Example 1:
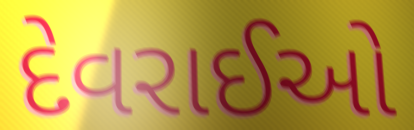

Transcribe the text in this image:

દેવરાઈઓ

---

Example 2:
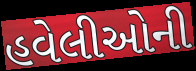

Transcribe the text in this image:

હવેલીઓની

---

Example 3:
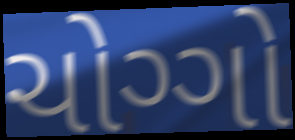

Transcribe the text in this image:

ચોગ્ગો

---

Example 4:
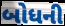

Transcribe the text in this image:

બોધની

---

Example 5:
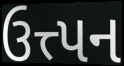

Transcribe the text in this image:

ઉત્ત્પન